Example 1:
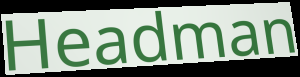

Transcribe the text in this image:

Headman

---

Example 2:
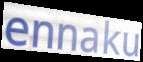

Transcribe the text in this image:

ennaku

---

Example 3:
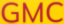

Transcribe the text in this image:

GMC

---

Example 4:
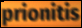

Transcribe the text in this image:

prionitis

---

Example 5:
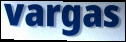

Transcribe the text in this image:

vargas